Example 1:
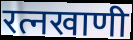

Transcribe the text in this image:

रत्नखाणी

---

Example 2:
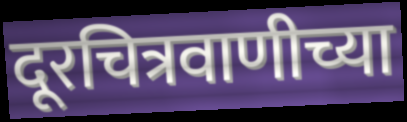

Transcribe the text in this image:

दूरचित्रवाणीच्या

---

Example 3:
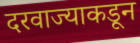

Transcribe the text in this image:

दरवाज्याकडून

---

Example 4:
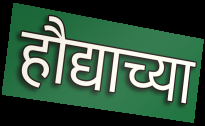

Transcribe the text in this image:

हौद्याच्या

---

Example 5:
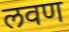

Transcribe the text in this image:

लवण